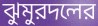
ঝুমুরদলের